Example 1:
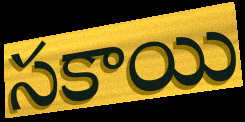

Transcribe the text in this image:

సకాయి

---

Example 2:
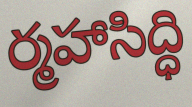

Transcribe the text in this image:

ర్మహాసిద్ధి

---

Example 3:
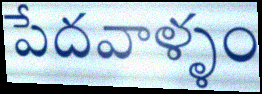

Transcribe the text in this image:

పేదవాళ్ళం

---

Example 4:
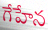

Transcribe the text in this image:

గేహేన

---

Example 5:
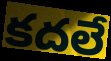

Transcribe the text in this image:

కదలే